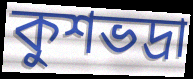
কুশভদ্রা